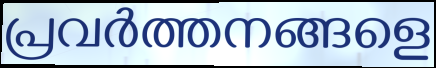
പ്രവർത്തനങ്ങളെ